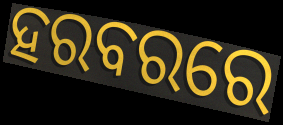
ହରବରରେ